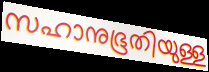
സഹാനുഭൂതിയുള്ള